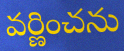
వర్ణించను